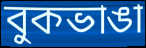
বুকভাঙা